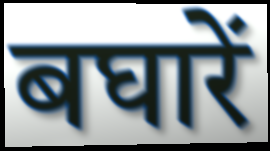
बघारें